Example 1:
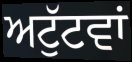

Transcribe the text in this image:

ਅਟੁੱਟਵਾਂ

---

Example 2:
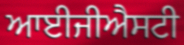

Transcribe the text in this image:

ਆਈਜੀਐਸਟੀ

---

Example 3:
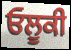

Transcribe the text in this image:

ਓਲੂਕੀ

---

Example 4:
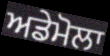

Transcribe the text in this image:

ਅਡੇਮੋਲਾ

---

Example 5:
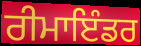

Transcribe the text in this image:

ਰੀਮਾਇੰਡਰ